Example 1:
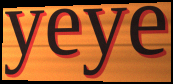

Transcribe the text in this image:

yeye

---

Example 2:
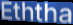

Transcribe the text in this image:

Eththa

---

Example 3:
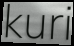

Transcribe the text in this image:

kuri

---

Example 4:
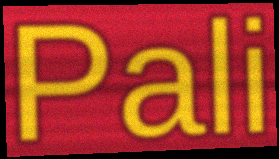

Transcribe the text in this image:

Pali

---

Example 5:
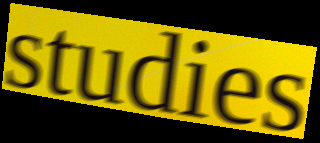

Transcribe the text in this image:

studies